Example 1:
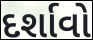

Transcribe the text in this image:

દર્શાવો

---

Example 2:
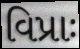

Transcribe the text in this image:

વિપ્રાઃ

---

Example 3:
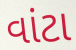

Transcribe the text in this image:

વાંટા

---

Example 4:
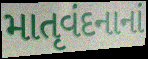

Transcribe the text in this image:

માતૃવંદનાનાં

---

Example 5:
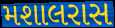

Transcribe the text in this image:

મશાલરાસ